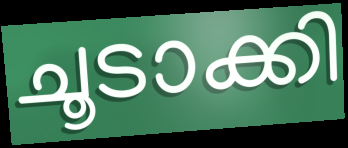
ചൂടാക്കി